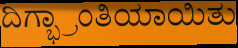
ದಿಗ್ಭ್ರಾಂತಿಯಾಯಿತು